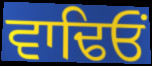
ਵਾਢਿਓਂ